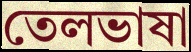
তেলভাষা